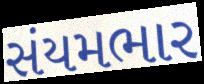
સંયમભાર